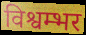
विश्वम्भर